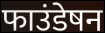
फाउंडेषन